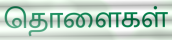
தொளைகள்